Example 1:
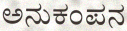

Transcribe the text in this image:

ಅನುಕಂಪನ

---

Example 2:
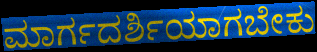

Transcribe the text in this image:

ಮಾರ್ಗದರ್ಶಿಯಾಗಬೇಕು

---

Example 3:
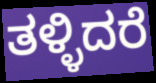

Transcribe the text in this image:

ತಳ್ಳಿದರೆ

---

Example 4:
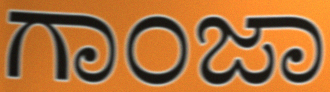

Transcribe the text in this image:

ಗಾಂಜಾ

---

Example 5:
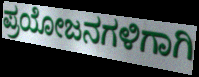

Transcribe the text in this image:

ಪ್ರಯೋಜನಗಳಿಗಾಗಿ